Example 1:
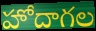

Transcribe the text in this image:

హోదాగల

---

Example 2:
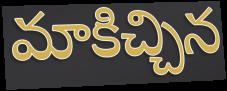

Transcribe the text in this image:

మాకిచ్చిన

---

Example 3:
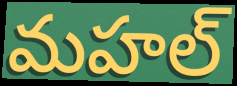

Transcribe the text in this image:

మహల్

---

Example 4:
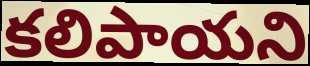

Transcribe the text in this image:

కలిపాయని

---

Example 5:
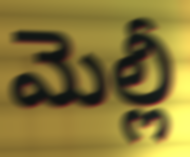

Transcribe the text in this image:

మెల్లీ